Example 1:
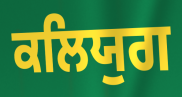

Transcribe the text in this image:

ਕਲਿਯੁਗ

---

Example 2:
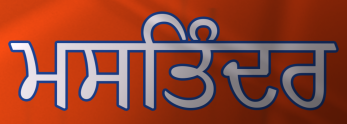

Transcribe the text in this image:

ਮਸਤਿੰਦਰ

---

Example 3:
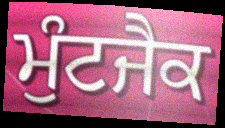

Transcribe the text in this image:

ਮੁੰਟਜੈਕ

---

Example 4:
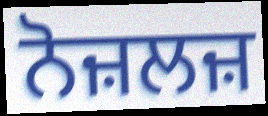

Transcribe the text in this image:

ਨੋਜ਼ਲਜ਼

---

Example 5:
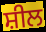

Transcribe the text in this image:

ਸ਼ੀਲ